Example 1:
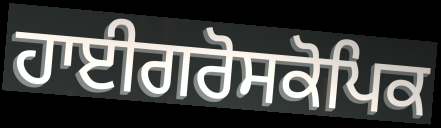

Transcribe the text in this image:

ਹਾਈਗਰੋਸਕੋਪਿਕ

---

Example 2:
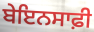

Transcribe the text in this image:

ਬੇਇਨਸਾਫ਼ੀ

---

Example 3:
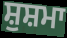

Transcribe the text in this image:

ਸ਼ੁਸ਼ਮਾ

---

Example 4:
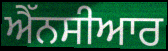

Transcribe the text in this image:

ਐੱਨਸੀਆਰ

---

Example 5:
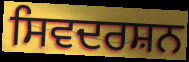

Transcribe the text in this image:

ਸਿਵਦਰਸ਼ਨ